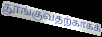
தூங்குவதற்காகக்